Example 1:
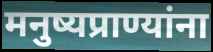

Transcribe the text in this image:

मनुष्यप्राण्यांना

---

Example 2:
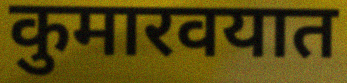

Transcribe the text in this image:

कुमारवयात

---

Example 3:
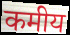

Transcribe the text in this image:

कमीय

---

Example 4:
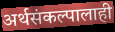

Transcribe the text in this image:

अर्थसंकल्पालाही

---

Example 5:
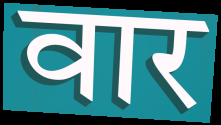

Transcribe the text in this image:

वार